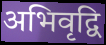
अभिवृद्वि